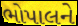
ભોપાલને